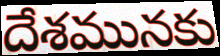
దేశమునకు